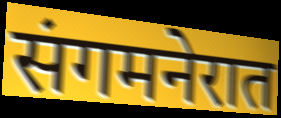
संगमनेरात